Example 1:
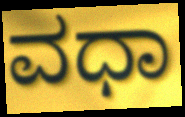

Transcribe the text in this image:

ವಧಾ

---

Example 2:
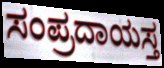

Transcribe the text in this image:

ಸಂಪ್ರದಾಯಸ್ತ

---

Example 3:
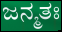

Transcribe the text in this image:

ಜನ್ಮತಃ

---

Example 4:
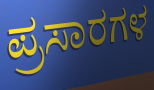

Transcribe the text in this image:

ಪ್ರಸಾರಗಳ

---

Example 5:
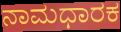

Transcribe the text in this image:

ನಾಮಧಾರಕ